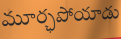
మూర్ఛపోయాడు